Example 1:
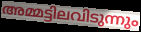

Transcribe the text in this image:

അമ്മട്ടിലവിടുന്നും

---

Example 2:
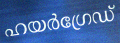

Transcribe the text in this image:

ഹയർഗ്രേഡ്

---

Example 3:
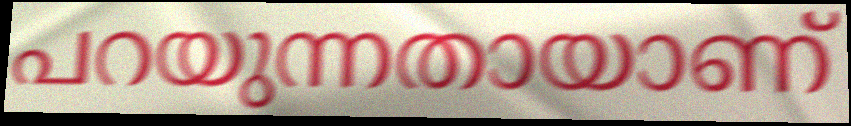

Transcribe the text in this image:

പറയുന്നതായാണ്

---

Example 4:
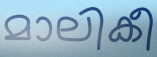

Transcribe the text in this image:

മാലികീ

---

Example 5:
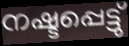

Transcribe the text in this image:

നഷ്ടപ്പെട്ടു്